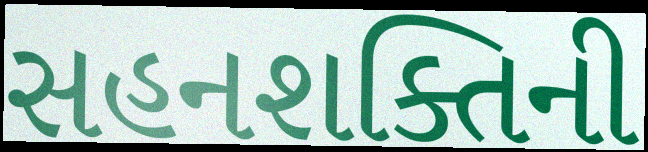
સહનશક્તિની